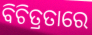
ବିଚିତ୍ରତାରେ